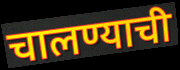
चालण्याची